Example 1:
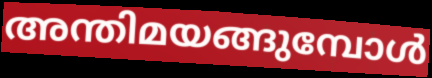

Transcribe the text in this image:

അന്തിമയങ്ങുമ്പോൾ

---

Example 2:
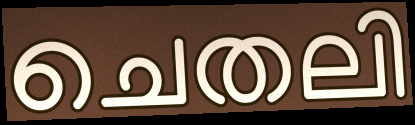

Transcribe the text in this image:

ചെതലി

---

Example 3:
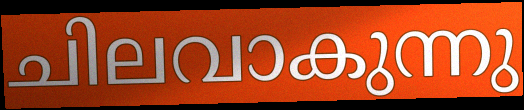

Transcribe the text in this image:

ചിലവാകുന്നു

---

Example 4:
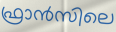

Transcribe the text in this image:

ഫ്രാൻസിലെ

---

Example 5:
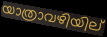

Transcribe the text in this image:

യാത്രാവഴിയില്